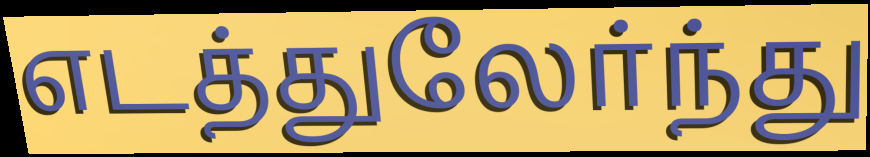
எடத்துலேர்ந்து